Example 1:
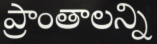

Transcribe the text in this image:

ప్రాంతాలన్ని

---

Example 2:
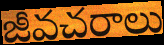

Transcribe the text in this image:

జీవచరాలు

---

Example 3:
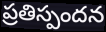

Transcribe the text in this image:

ప్రతిస్పందన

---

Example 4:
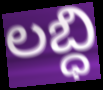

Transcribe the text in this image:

లబ్ధి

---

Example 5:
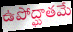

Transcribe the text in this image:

ఉపోద్ఘాతమే